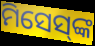
ମିସେସ୍‌ଙ୍କ